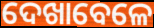
ଦେଖାବେଳେ